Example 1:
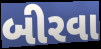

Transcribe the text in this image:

બીરવા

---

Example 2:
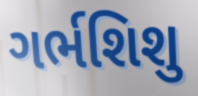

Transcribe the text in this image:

ગર્ભશિશુ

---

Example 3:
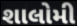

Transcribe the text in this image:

શાલોમી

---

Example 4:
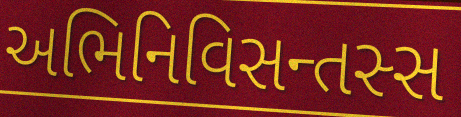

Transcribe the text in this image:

અભિનિવિસન્તસ્સ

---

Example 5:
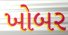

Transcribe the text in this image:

ખોબર